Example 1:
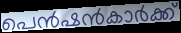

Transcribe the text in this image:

പെൻഷൻകാർക്ക്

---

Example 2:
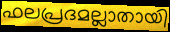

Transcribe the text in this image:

ഫലപ്രദമല്ലാതായി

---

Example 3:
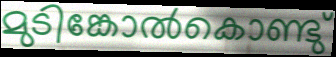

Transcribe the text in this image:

മുടിങ്കോൽകൊണ്ടു്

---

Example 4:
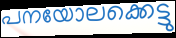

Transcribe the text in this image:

പനയോലക്കെട്ടു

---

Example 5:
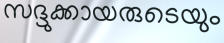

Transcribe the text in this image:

സദ്ദുക്കായരുടെയും